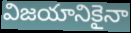
విజయానికైనా